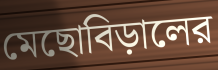
মেছোবিড়ালের